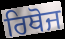
ਰਿਥੋਜ